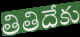
తితిదేకు